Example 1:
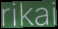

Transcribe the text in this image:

rikai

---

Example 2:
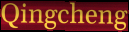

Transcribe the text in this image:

Qingcheng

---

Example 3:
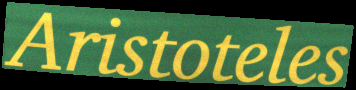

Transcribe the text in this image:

Aristoteles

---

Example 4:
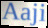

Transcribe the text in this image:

Aaji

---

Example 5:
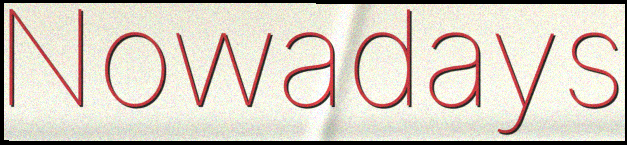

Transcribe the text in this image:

Nowadays